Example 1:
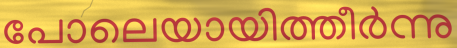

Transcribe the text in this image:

പോലെയായിത്തീർന്നു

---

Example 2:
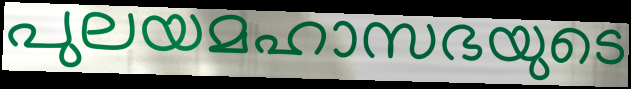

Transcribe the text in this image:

പുലയമഹാസഭയുടെ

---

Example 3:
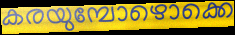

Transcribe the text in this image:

കരയുമ്പോഴൊക്കെ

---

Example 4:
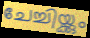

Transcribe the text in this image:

ചേച്ചിയ്ക്കും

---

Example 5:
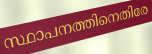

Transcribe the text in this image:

സ്ഥാപനത്തിനെതിരേ